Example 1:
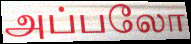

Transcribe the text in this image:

அப்பலோ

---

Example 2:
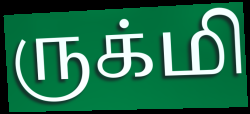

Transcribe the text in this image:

ருக்மி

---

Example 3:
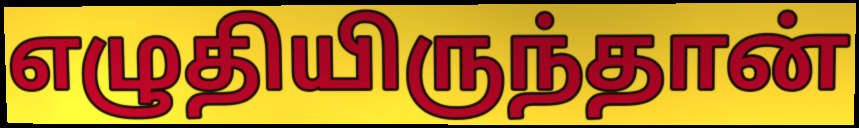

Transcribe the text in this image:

எழுதியிருந்தான்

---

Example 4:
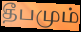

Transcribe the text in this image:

தீபமும்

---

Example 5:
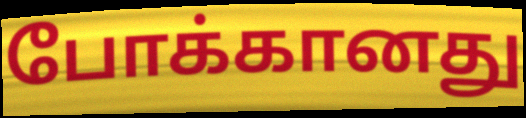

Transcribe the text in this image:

போக்கானது